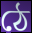
ঠে